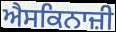
ਐਸਕਿਨਾਜ਼ੀ